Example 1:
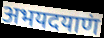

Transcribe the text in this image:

अभयदयाणं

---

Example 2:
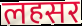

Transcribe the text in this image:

लहसर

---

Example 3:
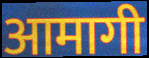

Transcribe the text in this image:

आमागी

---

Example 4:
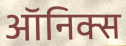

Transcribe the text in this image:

ऑनिक्स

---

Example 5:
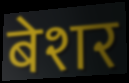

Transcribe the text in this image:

बेशर